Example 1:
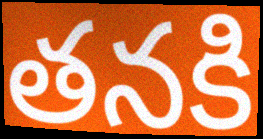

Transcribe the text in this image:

తనకి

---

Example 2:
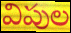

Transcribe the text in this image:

విపుల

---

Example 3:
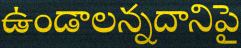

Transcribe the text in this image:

ఉండాలన్నదానిపై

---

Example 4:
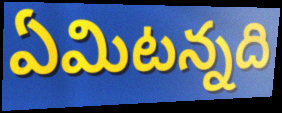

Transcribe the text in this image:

ఏమిటన్నది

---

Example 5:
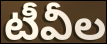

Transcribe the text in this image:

టీవీల